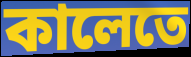
কালেতে